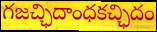
గజచ్ఛిదాంధకచ్ఛిదం